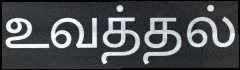
உவத்தல்